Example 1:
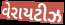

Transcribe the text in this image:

વેરાયટીઝ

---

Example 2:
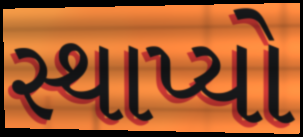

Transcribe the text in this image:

સ્થાપ્યો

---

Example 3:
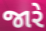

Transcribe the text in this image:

જારે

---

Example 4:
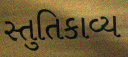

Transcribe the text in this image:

સ્તુતિકાવ્ય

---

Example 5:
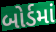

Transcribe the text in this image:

બોર્ડમાં